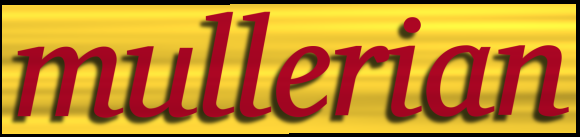
mullerian